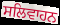
ਸਲਿਵਾਹਨ